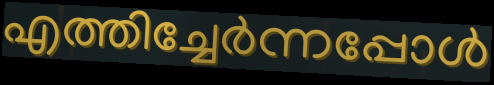
എത്തിച്ചേർന്നപ്പോൾ